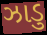
ઝાડુ